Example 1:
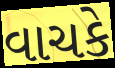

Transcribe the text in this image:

વાચકે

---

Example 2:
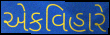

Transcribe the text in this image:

એકવિહારે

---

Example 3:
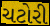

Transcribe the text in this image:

ચટોરી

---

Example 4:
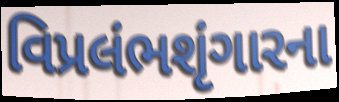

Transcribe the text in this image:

વિપ્રલંભશૃંગારના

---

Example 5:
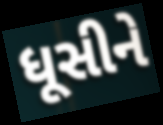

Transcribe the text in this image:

ધૂસીને